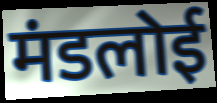
मंडलोई